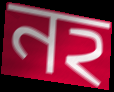
নহ